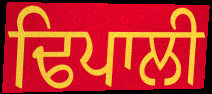
ਢਿਪਾਲੀ